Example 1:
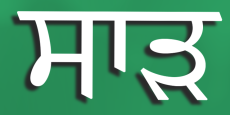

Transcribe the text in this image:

ਸਾਡ਼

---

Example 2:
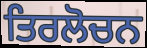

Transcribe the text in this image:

ਤਿਰਲੋਚਨ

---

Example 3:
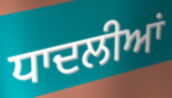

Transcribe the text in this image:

ਧਾਦਲੀਆਂ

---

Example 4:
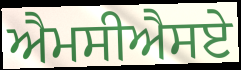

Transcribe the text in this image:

ਐਮਸੀਐਸਏ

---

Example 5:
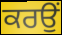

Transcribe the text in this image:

ਕਰਉਂ